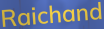
Raichand